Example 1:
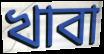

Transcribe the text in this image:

খাবা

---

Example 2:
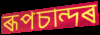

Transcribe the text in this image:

ৰূপচান্দৰ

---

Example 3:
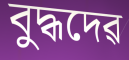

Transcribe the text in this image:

বুদ্ধদেৱ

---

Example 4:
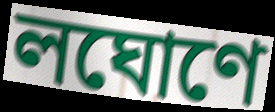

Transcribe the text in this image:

লঘোণে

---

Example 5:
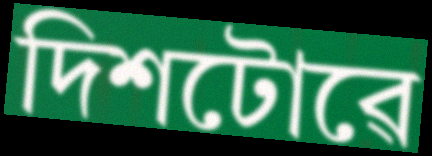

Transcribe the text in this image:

দিশটোৱে